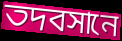
তদবসানে